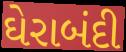
ઘેરાબંદી